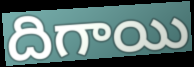
దిగాయి